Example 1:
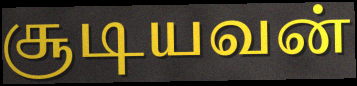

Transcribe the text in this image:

சூடியவன்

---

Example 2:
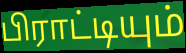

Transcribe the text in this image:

பிராட்டியும்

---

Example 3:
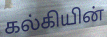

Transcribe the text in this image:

கல்கியின்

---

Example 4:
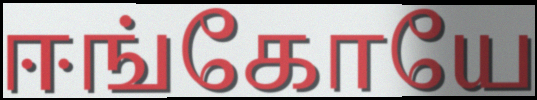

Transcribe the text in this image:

ஈங்கோயே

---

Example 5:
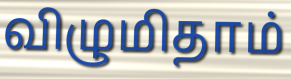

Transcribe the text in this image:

விழுமிதாம்